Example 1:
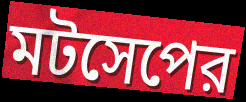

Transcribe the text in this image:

মটসেপের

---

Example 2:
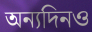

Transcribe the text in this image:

অন্যদিনও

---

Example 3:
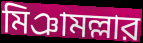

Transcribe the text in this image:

মিঞামল্লার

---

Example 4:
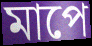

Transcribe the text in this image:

মাপে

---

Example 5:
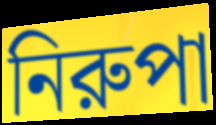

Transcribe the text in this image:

নিরুপা